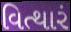
વિત્થારં